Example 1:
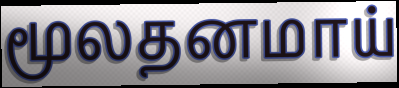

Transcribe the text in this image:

மூலதனமாய்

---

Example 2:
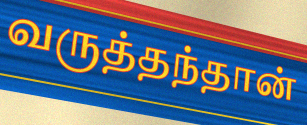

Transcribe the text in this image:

வருத்தந்தான்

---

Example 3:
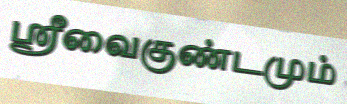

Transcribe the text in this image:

ஸ்ரீவைகுண்டமும்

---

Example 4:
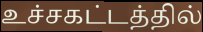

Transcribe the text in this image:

உச்சகட்டத்தில்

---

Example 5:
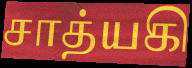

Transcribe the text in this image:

சாத்யகி